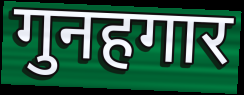
गुनहगार